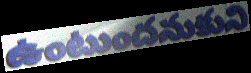
ఉంటుందనుకుని